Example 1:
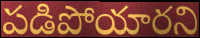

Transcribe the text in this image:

పడిపోయారని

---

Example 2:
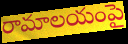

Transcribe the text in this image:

రామాలయంపై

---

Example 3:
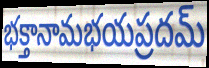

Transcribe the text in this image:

భక్తానామభయప్రదమ్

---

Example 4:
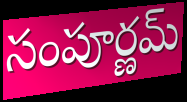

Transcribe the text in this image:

సంపూర్ణమ్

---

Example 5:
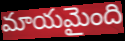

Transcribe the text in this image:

మాయమైంది